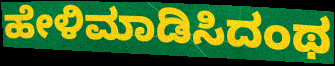
ಹೇಳಿಮಾಡಿಸಿದಂಥ